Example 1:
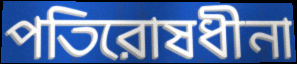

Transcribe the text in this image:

পতিরোষধীনা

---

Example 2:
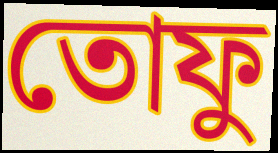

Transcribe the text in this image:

তোফু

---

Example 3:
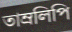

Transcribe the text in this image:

তাম্রলিপি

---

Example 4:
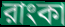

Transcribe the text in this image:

রাংকা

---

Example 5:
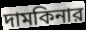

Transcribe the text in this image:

দামকিনার